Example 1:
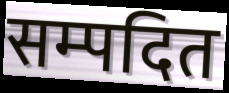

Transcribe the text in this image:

सम्पदित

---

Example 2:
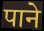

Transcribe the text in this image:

पाने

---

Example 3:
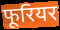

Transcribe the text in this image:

फूरियर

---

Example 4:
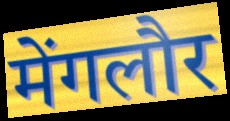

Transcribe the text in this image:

मेंगलौर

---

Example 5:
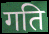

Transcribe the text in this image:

गति